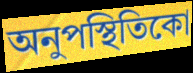
অনুপস্থিতিকো